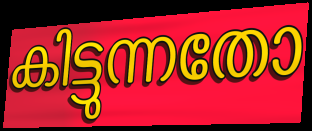
കിട്ടുന്നതോ